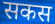
सकस